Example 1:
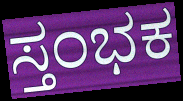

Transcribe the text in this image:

ಸ್ತಂಭಕ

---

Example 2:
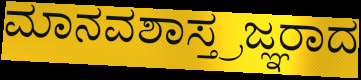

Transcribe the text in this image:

ಮಾನವಶಾಸ್ತ್ರಜ್ಞರಾದ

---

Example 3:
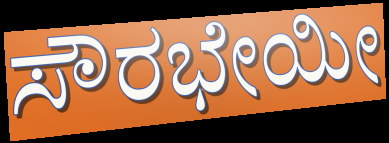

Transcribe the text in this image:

ಸೌರಭೇಯೀ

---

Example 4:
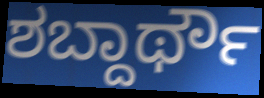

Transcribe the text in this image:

ಶಬ್ದಾರ್ಥೌ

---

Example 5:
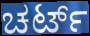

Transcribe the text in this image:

ಚರ್ಟ್